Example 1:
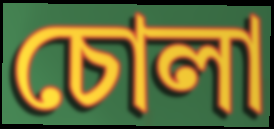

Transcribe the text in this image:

চোলা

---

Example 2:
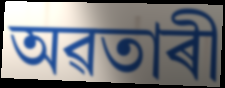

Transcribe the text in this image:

অৱতাৰী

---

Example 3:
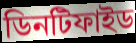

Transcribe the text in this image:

ডিনটিফাইড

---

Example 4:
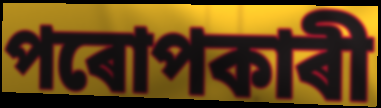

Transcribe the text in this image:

পৰোপকাৰী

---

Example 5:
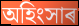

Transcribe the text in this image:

অহিংসাৰ